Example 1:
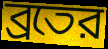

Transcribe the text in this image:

ব্রতের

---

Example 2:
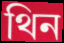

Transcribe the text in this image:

থিন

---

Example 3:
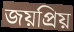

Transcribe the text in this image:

জয়প্রিয়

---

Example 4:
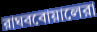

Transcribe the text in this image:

রাঘববোয়ালেরা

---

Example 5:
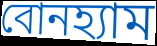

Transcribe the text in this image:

বোনহ্যাম